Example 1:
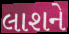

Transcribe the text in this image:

લાશને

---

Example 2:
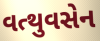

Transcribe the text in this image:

વત્થુવસેન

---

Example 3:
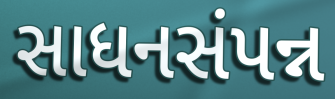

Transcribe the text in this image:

સાધનસંપન્ન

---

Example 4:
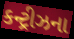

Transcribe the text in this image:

કન્ટ્રીઝના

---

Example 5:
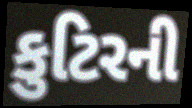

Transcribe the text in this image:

કુટિરની